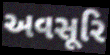
અવસૂરિ